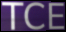
TCE